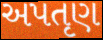
અપતૃણ